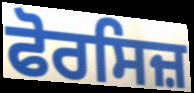
ਫੋਰਸਿਜ਼